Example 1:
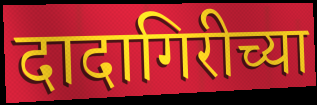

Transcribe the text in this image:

दादागिरीच्या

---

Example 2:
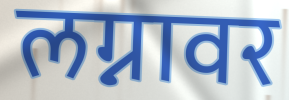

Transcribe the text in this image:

लग्नावर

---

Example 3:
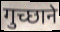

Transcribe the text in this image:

गुच्छाने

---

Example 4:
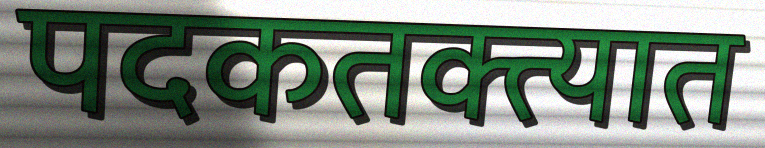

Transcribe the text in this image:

पदकतक्त्यात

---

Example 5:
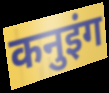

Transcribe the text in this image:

कनुइंग